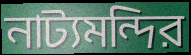
নাট্যমন্দির